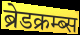
ब्रेडक्रम्ब्स